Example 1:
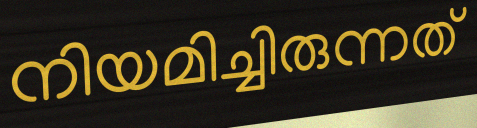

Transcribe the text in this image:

നിയമിച്ചിരുന്നത്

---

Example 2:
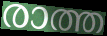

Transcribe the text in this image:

രാത്ത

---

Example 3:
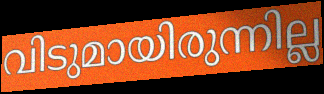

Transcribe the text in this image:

വിടുമായിരുന്നില്ല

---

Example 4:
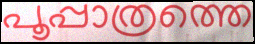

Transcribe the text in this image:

പൂപ്പാത്രത്തെ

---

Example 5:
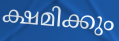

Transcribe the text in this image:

ക്ഷമിക്കും